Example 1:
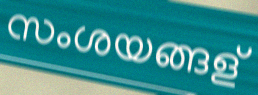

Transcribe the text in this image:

സംശയങ്ങള്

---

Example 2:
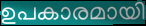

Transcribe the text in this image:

ഉപകാരമായി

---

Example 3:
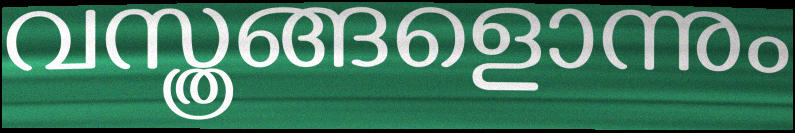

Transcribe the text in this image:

വസ്ത്രങ്ങളൊന്നും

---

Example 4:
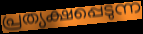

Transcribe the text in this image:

പ്രത്യക്ഷപ്പെടുന്ന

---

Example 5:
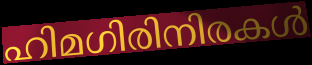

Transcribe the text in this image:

ഹിമഗിരിനിരകൾ